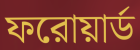
ফরোয়ার্ড